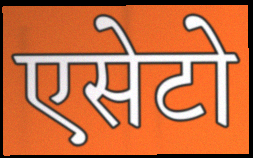
एसेटो